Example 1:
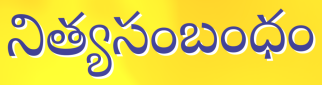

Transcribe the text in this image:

నిత్యసంబంధం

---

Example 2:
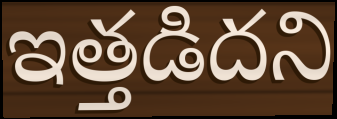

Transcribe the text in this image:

ఇత్తడిదని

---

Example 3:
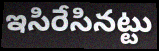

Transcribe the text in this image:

ఇసిరేసినట్టు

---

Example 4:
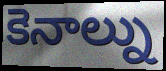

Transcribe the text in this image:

కెనాల్ను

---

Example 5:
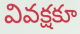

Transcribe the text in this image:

వివక్షకూ